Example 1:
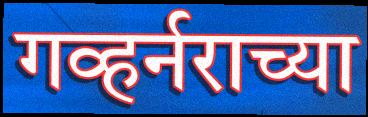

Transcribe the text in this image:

गव्हर्नराच्या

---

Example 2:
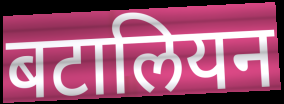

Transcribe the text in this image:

बटालियन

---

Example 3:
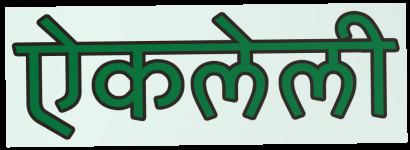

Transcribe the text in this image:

ऐकलेली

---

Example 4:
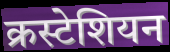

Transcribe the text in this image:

क्रस्टेशियन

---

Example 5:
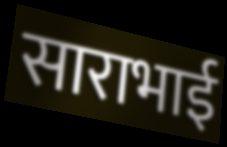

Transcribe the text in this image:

साराभाई